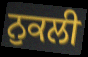
ਨੁਕਲੀ